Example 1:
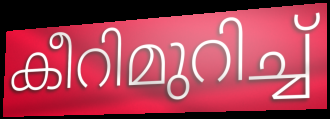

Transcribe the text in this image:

കീറിമുറിച്ച്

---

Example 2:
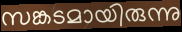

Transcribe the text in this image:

സങ്കടമായിരുന്നു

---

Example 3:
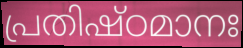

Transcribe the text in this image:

പ്രതിഷ്ഠമാനഃ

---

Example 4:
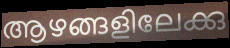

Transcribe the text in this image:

ആഴങ്ങളിലേക്കു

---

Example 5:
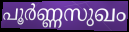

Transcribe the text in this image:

പൂർണ്ണസുഖം